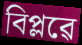
বিপ্লৱে